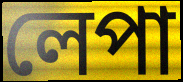
লেপা